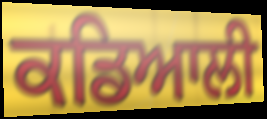
ਕਡਿਆਲੀ